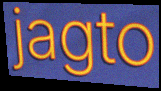
jagto